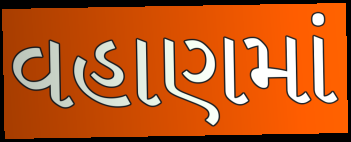
વહાણમાં